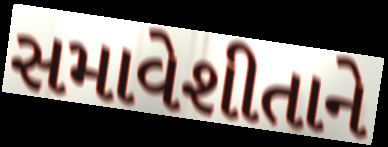
સમાવેશીતાને